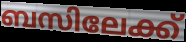
ബസിലേക്ക്